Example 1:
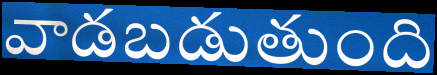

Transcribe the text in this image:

వాడబడుతుంది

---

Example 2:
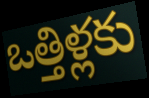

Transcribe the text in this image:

ఒత్తిళ్లకు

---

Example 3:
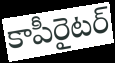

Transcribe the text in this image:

కాపీరైటర్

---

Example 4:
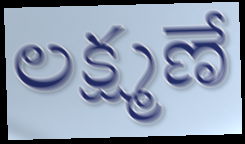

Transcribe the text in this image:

లక్ష్మణే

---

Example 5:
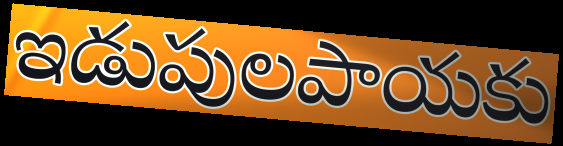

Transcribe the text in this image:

ఇడుపులపాయకు